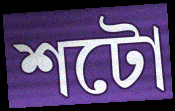
শটো